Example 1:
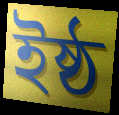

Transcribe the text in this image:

ইষ্ঠ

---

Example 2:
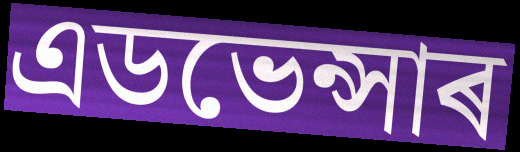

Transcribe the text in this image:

এডভেন্সাৰ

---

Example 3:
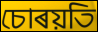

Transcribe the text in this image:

চোৰয়তি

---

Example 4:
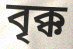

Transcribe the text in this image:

বৃক্ক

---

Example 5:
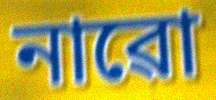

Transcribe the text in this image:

নাৱো